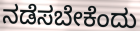
ನಡೆಸಬೇಕೆಂದು